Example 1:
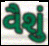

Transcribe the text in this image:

વૈશું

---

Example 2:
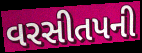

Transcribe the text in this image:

વરસીતપની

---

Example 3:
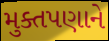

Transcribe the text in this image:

મુક્તપણાને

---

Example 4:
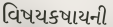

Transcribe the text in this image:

વિષયકષાયની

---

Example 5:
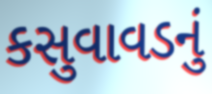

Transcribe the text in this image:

કસુવાવડનું